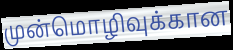
முன்மொழிவுக்கான